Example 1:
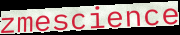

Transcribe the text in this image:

zmescience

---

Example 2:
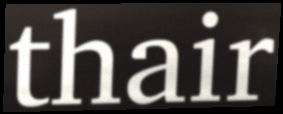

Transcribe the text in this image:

thair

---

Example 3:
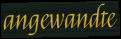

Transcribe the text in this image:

angewandte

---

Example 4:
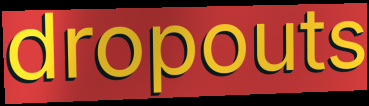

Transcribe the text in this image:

dropouts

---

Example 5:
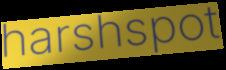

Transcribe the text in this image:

harshspot